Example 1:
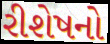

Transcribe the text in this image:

રીશેષનો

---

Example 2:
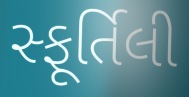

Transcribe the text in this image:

સ્ફૂર્તિલી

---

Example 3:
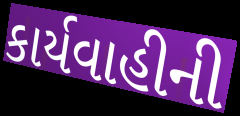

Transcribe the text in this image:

કાર્યવાહીની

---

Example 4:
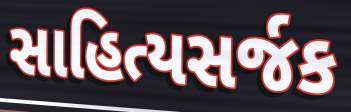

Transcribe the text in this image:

સાહિત્યસર્જક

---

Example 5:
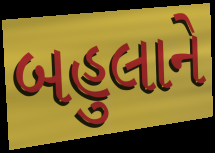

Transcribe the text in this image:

બહુલાને